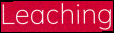
Leaching